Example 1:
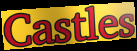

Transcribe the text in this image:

Castles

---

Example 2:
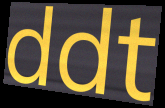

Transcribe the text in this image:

ddt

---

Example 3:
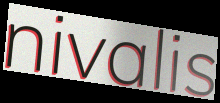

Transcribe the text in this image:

nivalis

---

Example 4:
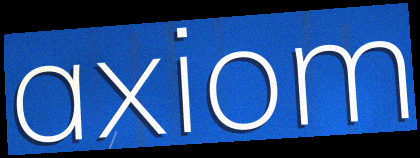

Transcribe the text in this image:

axiom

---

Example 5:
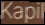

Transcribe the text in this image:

Kapil